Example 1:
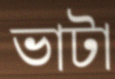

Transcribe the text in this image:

ভাটা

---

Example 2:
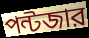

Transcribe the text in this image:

পন্টজার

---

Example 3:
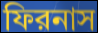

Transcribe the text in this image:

ফিরনাস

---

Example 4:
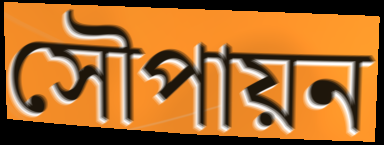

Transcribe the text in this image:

সৌপায়ন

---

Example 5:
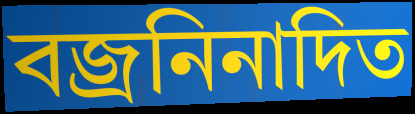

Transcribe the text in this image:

বজ্রনিনাদিত